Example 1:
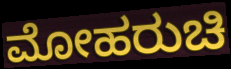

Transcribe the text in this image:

ಮೋಹರುಚಿ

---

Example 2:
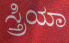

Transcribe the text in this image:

ಸ್ತ್ರಿಯಾ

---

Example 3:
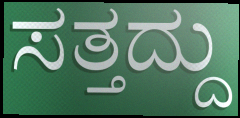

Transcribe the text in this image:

ಸತ್ತದ್ದು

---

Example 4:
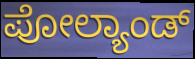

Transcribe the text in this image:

ಪೋಲ್ಯಾಂಡ್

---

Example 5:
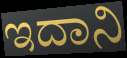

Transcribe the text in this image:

ಇದಾನಿ